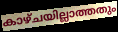
കാഴ്ചയില്ലാത്തതും